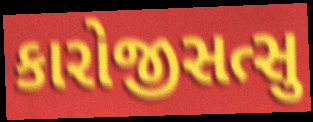
કારોજીસત્સુ